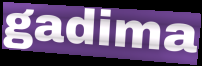
gadima